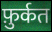
फ़ुर्कत